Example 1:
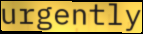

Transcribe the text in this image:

urgently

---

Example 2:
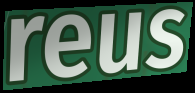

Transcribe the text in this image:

reus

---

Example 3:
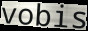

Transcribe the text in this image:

vobis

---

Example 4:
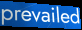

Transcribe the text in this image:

prevailed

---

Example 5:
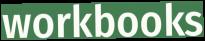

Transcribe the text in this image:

workbooks